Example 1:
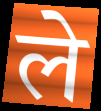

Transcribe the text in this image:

ले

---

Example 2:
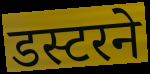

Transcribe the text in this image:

डस्टरने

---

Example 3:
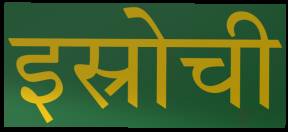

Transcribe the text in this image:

इस्रोची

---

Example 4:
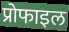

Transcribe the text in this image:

प्रोफाइल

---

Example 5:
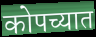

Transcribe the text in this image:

कोपच्यात